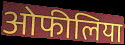
ओफीलिया